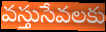
వస్తుసేవలకు